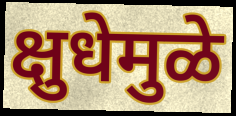
क्षुधेमुळे